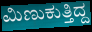
ಮಿಣುಕುತ್ತಿದ್ದ